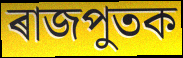
ৰাজপুতক